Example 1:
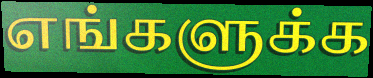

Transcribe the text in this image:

எங்களுக்க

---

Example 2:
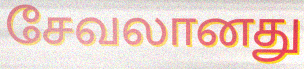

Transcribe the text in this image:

சேவலானது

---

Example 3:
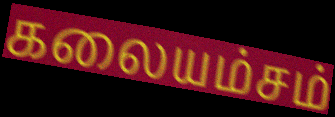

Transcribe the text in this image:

கலையம்சம்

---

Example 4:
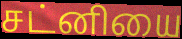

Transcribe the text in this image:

சட்னியை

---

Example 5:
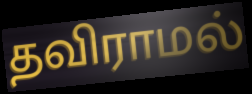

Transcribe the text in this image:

தவிராமல்